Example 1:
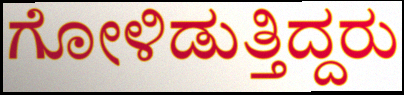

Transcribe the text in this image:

ಗೋಳಿಡುತ್ತಿದ್ದರು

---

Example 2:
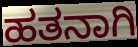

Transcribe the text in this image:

ಹತನಾಗಿ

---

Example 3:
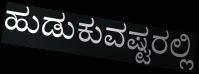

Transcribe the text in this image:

ಹುಡುಕುವಷ್ಟರಲ್ಲಿ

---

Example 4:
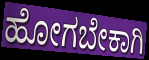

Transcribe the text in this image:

ಹೋಗಬೇಕಾಗಿ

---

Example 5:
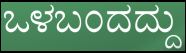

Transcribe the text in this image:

ಒಳಬಂದದ್ದು